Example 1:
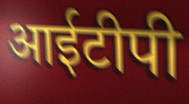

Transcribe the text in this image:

आईटीपी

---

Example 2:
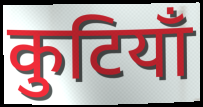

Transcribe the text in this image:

कुटियाँ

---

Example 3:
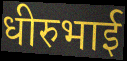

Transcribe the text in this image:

धीरुभाई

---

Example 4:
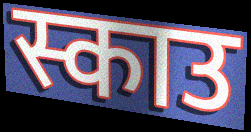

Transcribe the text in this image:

स्काउ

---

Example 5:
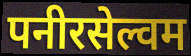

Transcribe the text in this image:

पनीरसेल्वम